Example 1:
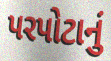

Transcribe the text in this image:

પરપોટાનું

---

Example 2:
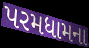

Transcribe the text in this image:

પરમધામના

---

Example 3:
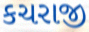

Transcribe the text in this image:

કચરાજી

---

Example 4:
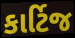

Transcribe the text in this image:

કાર્ટિજ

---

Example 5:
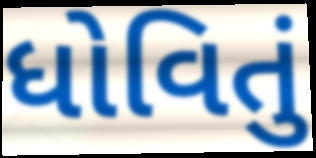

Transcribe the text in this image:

ધોવિતું